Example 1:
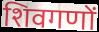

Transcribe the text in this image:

शिवगणों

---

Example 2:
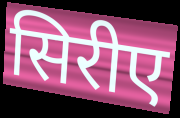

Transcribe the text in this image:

सिरीए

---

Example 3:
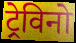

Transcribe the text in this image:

ट्रेविनो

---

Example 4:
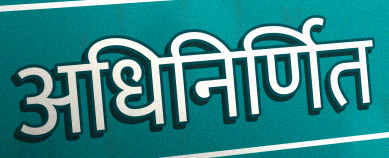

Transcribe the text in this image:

अधिनिर्णित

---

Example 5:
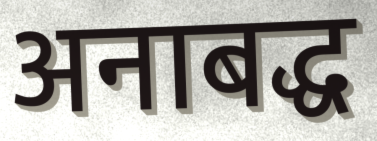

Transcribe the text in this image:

अनाबद्ध